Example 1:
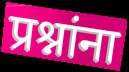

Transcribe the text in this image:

प्रश्नांना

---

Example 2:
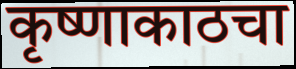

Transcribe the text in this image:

कृष्णाकाठचा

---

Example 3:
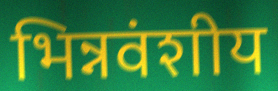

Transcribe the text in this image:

भिन्नवंशीय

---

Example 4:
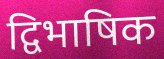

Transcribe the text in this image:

द्विभाषिक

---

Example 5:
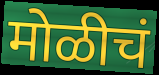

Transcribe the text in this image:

मोळीचं